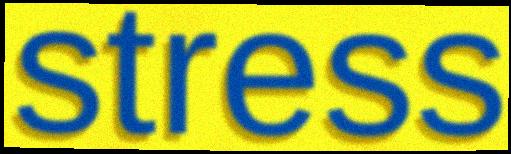
stress